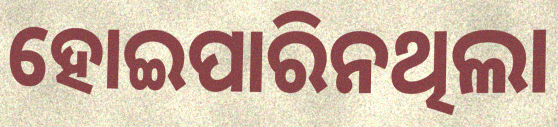
ହୋଇପାରିନଥିଲା